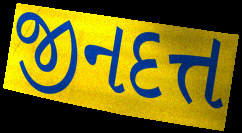
જીનદત્ત